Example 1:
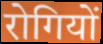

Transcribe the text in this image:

रोगियों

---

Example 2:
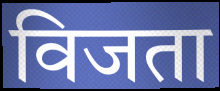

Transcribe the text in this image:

विजता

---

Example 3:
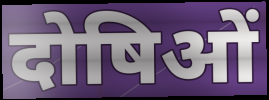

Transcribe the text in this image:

दोषिओं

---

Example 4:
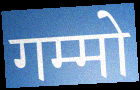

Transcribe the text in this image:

गम्मो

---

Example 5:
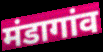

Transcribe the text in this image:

मंडागांव